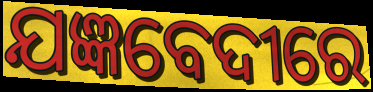
ଯଜ୍ଞବେଦୀରେ